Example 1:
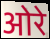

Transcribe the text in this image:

ओरे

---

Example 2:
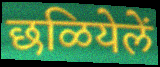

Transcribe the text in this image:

छळियेलें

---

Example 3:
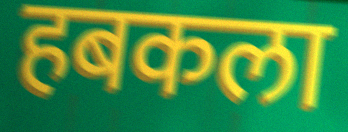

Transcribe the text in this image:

हबकला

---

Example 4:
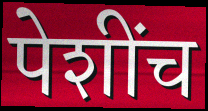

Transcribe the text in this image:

पेशींच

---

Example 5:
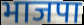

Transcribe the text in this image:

भाजपा